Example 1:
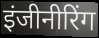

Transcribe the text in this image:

इंजीनीरिंग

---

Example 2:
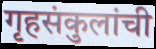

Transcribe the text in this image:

गृहसंकुलांची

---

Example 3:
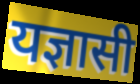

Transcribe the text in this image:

यज्ञासी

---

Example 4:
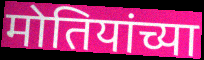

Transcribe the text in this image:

मोतियांच्या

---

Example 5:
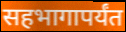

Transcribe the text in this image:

सहभागापर्यंत